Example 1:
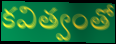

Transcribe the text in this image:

కవిత్వంతో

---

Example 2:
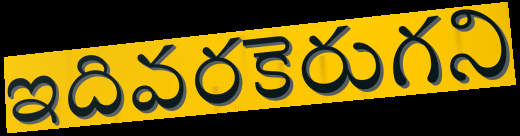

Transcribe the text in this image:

ఇదివరకెరుగని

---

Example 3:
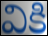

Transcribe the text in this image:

వికి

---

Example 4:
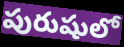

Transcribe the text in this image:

పురుషులో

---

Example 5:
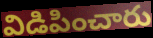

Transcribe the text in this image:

విడిపించారు